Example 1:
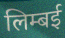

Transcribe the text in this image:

लिम्बई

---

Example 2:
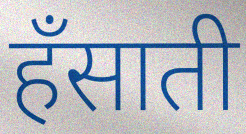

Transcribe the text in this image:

हँसाती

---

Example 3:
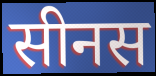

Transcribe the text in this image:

सीनस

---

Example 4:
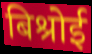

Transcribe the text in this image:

बिश्रोई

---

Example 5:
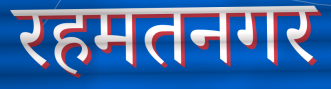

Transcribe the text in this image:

रहमतनगर